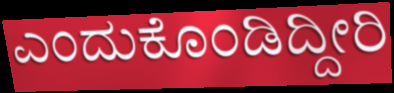
ಎಂದುಕೊಂಡಿದ್ದೀರಿ